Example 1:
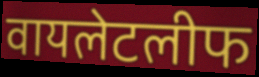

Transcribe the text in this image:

वायलेटलीफ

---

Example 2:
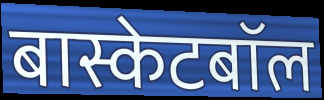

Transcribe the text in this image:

बास्केटबॉल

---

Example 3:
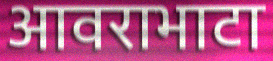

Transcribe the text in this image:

आवराभाटा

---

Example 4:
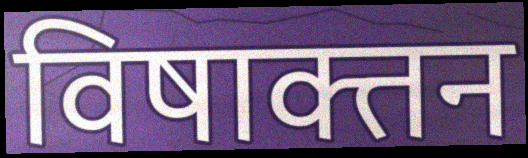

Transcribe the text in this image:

विषाक्तन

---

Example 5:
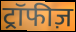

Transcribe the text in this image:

ट्रॉफीज़